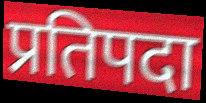
प्रतिपदा